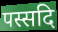
पस्सदि